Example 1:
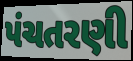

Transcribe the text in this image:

પંચતરણી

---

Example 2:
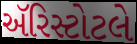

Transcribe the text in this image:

ઍરિસ્ટોટલે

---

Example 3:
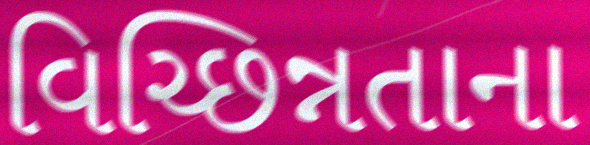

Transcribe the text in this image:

વિચ્છિન્નતાના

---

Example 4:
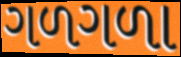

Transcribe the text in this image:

ગળગળા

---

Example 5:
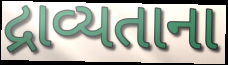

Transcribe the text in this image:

દ્રાવ્યતાના